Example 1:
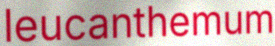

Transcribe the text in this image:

leucanthemum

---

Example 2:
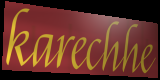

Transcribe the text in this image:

karechhe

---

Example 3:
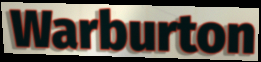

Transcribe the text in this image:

Warburton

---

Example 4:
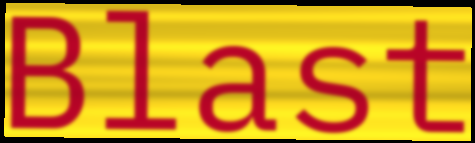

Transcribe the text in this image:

Blast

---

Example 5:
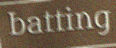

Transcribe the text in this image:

batting